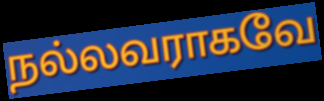
நல்லவராகவே